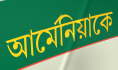
আর্মেনিয়াকে